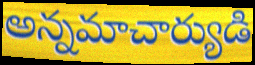
అన్నమాచార్యుడి